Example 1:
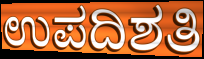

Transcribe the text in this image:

ಉಪದಿಶತಿ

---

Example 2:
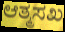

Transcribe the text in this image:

ಆತ್ಮಸಖ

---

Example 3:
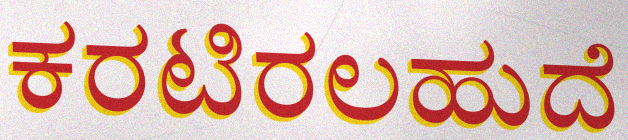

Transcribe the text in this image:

ಕರಟಿರಲಹುದೆ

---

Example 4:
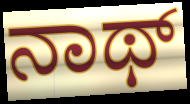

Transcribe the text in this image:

ನಾಥ್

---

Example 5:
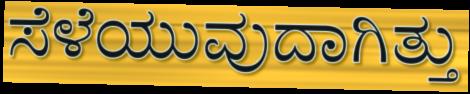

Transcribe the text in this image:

ಸೆಳೆಯುವುದಾಗಿತ್ತು